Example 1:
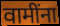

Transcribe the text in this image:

वामींना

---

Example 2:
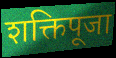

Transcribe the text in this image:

शक्तिपूजा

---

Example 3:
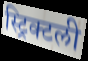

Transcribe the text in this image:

स्ट्रिक्टली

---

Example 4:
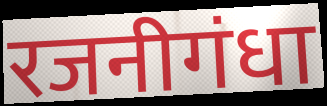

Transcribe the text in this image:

रजनीगंधा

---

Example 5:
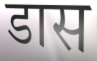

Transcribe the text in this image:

डास